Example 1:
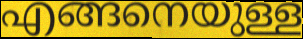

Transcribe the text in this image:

എങ്ങനെയുള്ള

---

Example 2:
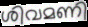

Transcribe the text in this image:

ശിവമണി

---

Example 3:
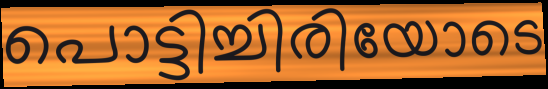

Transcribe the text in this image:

പൊട്ടിച്ചിരിയോടെ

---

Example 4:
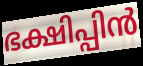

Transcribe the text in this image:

ഭക്ഷിപ്പിൻ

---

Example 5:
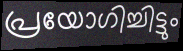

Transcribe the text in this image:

പ്രയോഗിച്ചിട്ടും